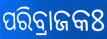
ପରିବ୍ରାଜକଃ